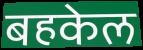
बहकेल